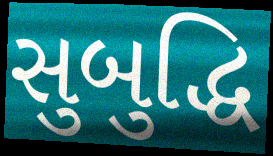
સુબુદ્ધિ